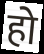
हो